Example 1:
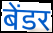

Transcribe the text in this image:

बेंडर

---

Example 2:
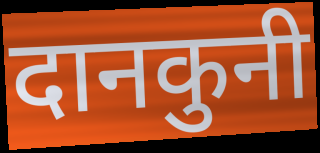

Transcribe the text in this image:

दानकुनी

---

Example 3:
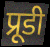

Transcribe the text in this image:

प्रूडी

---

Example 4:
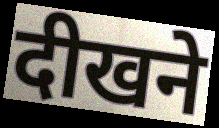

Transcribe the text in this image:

दीखने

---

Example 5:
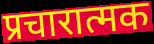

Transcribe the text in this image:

प्रचारात्मक